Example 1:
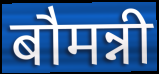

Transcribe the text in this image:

बौमन्नी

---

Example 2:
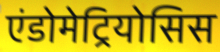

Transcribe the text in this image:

एंडोमेट्रियोसिस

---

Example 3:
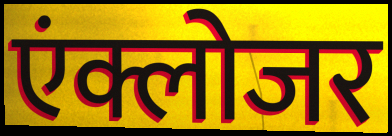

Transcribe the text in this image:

एंक्लोजर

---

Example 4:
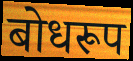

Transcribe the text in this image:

बोधरूप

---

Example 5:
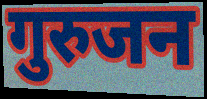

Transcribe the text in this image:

गुरुजन